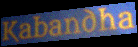
Kabandha